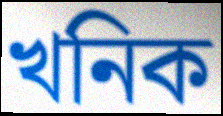
খনিক